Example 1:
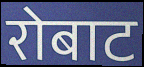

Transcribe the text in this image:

रोबाट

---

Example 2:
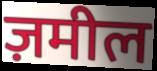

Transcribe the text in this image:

ज़मील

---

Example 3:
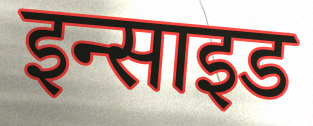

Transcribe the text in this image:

इन्साइड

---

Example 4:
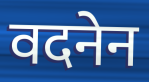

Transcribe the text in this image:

वदनेन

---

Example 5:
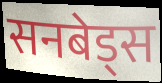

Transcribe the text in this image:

सनबेड्स